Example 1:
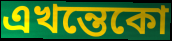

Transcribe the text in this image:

এখন্তেকো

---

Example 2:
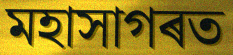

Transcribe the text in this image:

মহাসাগৰত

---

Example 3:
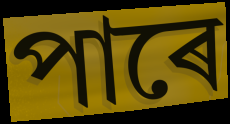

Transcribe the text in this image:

পাৰে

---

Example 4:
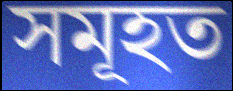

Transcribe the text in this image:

সমূহত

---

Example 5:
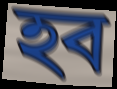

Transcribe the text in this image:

হব